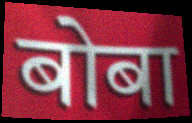
बोबा